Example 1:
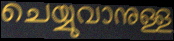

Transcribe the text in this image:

ചെയ്യുവാനുള്ള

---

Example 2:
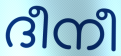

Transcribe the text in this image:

ദീനീ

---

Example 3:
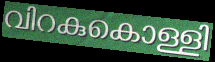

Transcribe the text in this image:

വിറകുകൊള്ളി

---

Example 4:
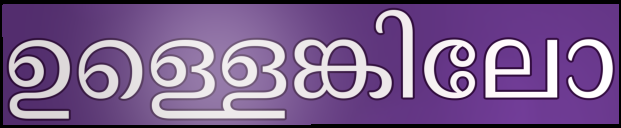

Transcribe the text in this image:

ഉള്ളെങ്കിലോ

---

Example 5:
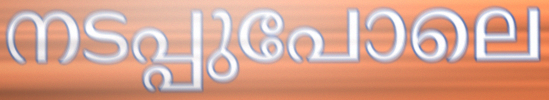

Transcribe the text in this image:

നടപ്പുപോലെ